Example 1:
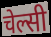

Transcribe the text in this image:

चेल्सी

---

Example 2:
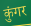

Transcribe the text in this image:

कुंगर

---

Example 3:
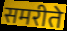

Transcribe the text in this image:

समरीते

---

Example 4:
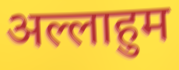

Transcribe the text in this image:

अल्लाहुम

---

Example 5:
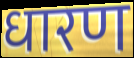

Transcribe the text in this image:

धारण